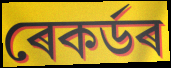
ৰেকৰ্ডৰ